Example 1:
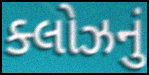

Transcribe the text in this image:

ક્લોઝનું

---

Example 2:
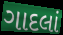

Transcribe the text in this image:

ગાદલાં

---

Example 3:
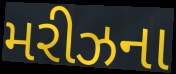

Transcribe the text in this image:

મરીઝના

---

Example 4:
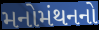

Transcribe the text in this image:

મનોમંથનનો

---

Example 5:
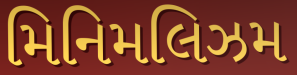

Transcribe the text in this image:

મિનિમલિઝમ